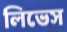
লিভেস